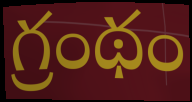
గ్రంథం